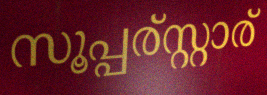
സൂപ്പര്സ്റ്റാര്